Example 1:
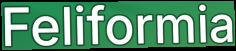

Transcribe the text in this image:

Feliformia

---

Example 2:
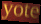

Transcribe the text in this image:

yote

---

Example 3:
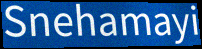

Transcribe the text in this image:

Snehamayi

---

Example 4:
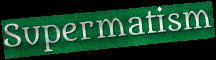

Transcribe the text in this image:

Supermatism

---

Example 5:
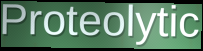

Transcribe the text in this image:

Proteolytic